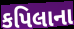
કપિલાના